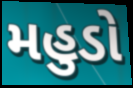
મહુડો